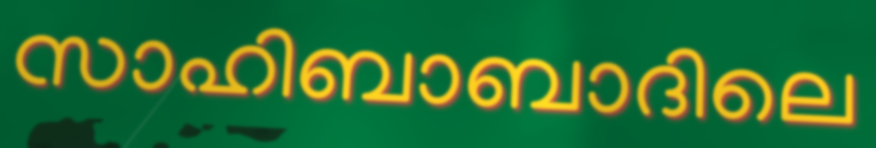
സാഹിബാബാദിലെ